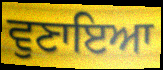
ਵੁਣਾਇਆ